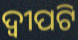
ଦ୍ୱୀପଟି